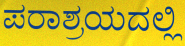
ಪರಾಶ್ರಯದಲ್ಲಿ